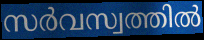
സർവസ്വത്തിൽ